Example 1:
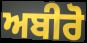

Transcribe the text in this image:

ਅਬੀਰੋ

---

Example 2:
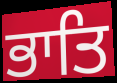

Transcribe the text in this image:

ਭਾਤਿ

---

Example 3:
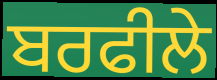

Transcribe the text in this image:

ਬਰਫੀਲੇ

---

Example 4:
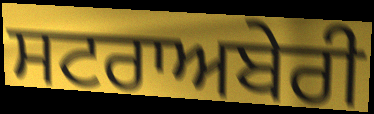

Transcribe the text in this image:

ਸਟਰਾਅਬੇਰੀ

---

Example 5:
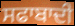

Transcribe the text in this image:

ਸਫਾਬਾਦੀ